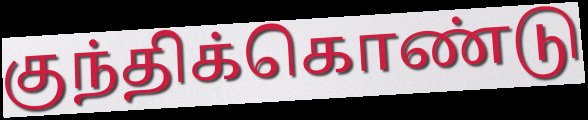
குந்திக்கொண்டு